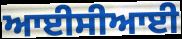
ਆਈਸੀਆਈ